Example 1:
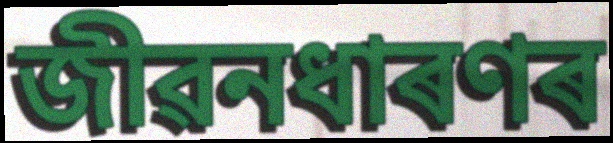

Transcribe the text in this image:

জীৱনধাৰণৰ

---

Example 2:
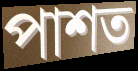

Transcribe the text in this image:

পাশত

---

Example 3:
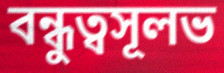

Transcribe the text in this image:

বন্ধুত্বসূলভ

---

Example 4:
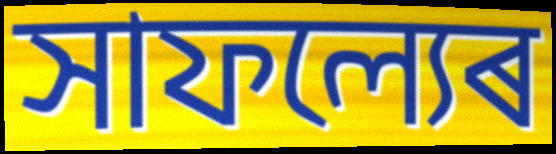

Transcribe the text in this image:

সাফল্যেৰ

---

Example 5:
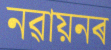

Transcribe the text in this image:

নৱায়নৰ